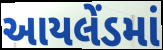
આયલેંડમાં